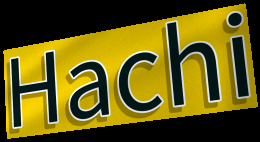
Hachi